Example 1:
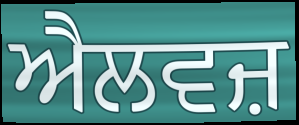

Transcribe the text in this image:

ਐਲਵਜ਼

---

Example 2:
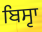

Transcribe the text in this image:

ਬਿਸ੍ਟਾ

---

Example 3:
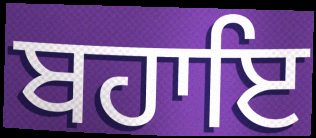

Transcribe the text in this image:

ਬਹਾਇ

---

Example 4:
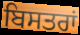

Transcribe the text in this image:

ਬਿਸਤਰਾਂ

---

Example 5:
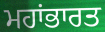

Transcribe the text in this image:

ਮਹਾਂਭਾਰਤ